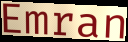
Emran